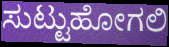
ಸುಟ್ಟುಹೋಗಲಿ